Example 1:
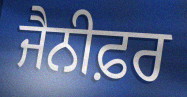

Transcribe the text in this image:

ਜੈਨੀਫ਼ਰ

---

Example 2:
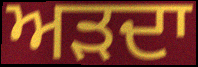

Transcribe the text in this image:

ਅੜਦਾ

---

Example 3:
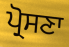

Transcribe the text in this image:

ਪ੍ਰੋਸਣਾ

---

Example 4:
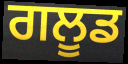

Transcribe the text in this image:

ਗਲੂਡ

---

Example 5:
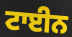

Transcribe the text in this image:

ਟਾਈਨ